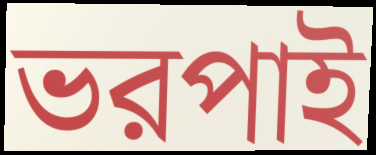
ভরপাই